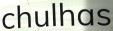
chulhas